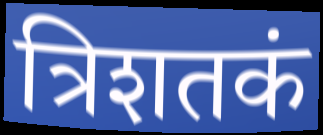
त्रिशतकं